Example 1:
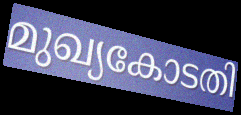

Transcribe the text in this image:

മുഖ്യകോടതി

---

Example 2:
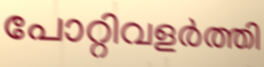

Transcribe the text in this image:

പോറ്റിവളർത്തി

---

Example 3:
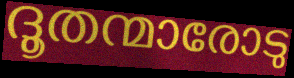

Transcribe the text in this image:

ദൂതന്മാരോടു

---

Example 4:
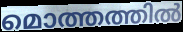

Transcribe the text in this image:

മൊത്തത്തിൽ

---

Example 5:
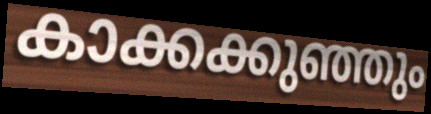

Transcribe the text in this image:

കാക്കക്കുഞ്ഞും